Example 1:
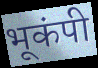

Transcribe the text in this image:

भूकंपी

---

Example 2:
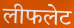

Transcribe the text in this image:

लीफलेट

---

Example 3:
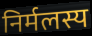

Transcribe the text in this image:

निर्मलस्य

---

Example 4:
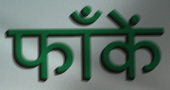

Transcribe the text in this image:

फाँकें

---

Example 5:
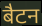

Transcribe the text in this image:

बैटन